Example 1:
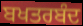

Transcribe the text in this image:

ਬਖਤਰਬੰਦ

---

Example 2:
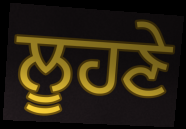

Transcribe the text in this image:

ਲੂਹਣੇ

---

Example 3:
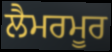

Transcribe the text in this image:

ਲੈਮਰਮੂਰ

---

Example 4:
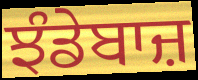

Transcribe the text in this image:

ਝੰਡੇਬਾਜ਼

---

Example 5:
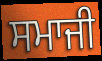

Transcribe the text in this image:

ਸਮਾਜੀ